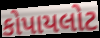
કોપાયલોટ